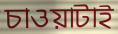
চাওয়াটাই